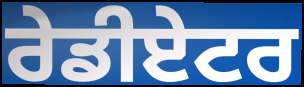
ਰੇਡੀਏਟਰ